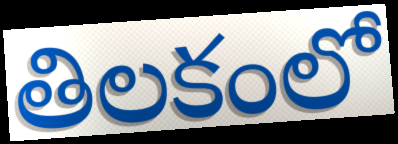
తిలకంలో